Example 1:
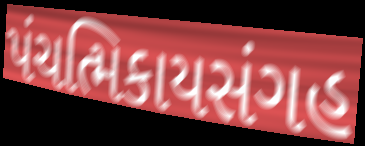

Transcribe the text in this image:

પંચત્મિકાયસંગહ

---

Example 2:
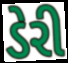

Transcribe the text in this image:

ડેરી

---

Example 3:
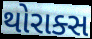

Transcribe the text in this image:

થોરાક્સ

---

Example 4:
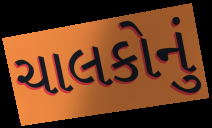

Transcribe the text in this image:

ચાલકોનું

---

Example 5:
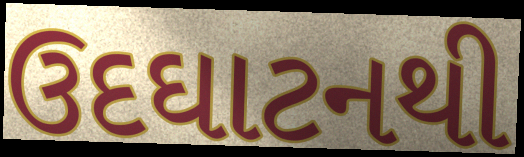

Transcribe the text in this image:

ઉદઘાટનથી